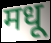
मधू